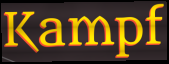
Kampf